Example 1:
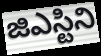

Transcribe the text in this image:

జిఎస్టిని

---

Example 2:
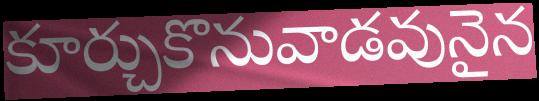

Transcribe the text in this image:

కూర్చుకొనువాడవునైన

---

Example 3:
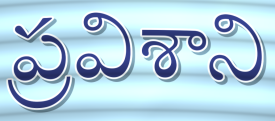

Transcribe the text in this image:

ప్రవిశాని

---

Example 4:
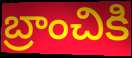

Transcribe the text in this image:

బ్రాంచికి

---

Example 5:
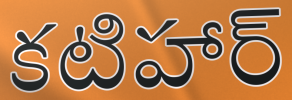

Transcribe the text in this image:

కటిహార్